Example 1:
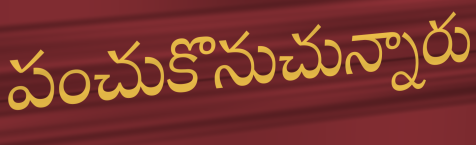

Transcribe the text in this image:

పంచుకొనుచున్నారు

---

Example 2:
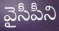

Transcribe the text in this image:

వైసీపీని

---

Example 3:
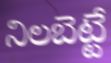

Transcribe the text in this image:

నిలబెట్టే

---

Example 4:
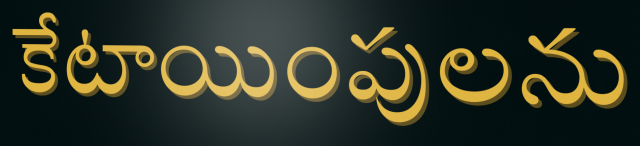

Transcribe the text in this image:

కేటాయింపులను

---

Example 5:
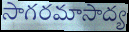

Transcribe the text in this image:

సాగరమాసాద్య